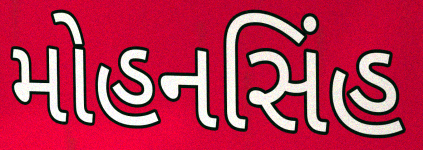
મોહનસિંહ